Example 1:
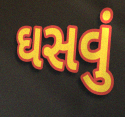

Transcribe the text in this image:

ઘસવું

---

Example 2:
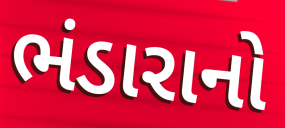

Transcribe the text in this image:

ભંડારાનો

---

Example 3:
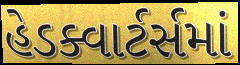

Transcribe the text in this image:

હેડક્વાર્ટર્સમાં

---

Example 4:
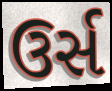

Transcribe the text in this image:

ઉર્સ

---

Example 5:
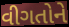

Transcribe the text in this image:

વીગતોને